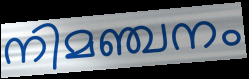
നിമഞ്ചനം